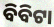
ବିବିଟା